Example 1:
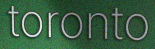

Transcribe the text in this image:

toronto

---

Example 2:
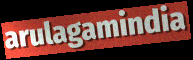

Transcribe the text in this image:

arulagamindia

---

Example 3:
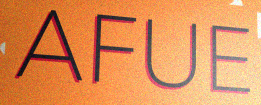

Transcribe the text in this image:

AFUE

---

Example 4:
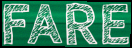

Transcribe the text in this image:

FARE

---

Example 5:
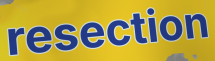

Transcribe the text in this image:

resection